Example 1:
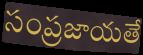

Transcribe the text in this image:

సంప్రజాయతే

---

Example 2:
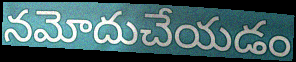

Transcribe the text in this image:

నమోదుచేయడం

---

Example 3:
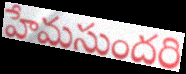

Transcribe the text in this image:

హేమసుందరి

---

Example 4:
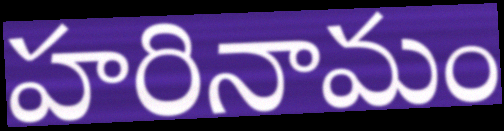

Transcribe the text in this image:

హరినామం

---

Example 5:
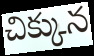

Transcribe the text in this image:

చిక్కున